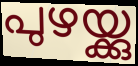
പുഴയ്ക്കു